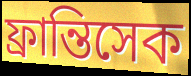
ফ্রান্তিসেক